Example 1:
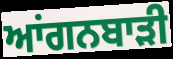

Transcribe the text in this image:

ਆਂਗਨਬਾੜੀ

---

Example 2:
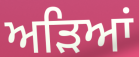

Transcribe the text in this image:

ਅੜਿਆਂ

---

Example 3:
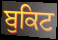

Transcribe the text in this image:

ਬੁਕਿਟ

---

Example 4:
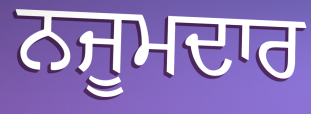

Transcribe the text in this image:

ਨਜੂਮਦਾਰ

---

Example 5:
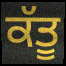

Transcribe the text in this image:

ਕੱਤੂ